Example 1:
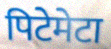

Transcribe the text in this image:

पिटेमेटा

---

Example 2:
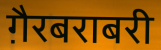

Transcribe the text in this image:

ग़ैरबराबरी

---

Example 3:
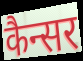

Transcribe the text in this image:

कैन्सर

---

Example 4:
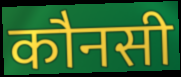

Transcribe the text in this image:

कौनसी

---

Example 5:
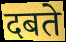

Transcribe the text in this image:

दबते